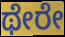
ಥೇರೇ